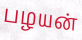
பழயன்